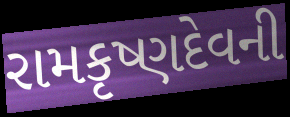
રામકૃષ્ણદેવની